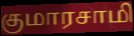
குமாரசாமி